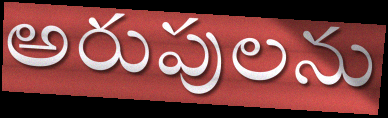
అరుపులను